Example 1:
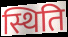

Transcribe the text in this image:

स्थिति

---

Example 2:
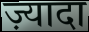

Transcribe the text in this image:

ज़्यादा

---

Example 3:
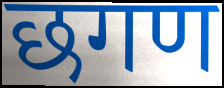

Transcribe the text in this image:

छगण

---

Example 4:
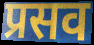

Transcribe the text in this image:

प्रसव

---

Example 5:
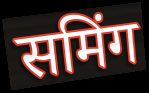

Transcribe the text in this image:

समिंग